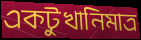
একটুখানিমাত্র